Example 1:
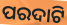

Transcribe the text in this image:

ପରଦାଟି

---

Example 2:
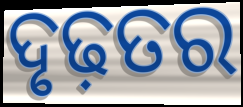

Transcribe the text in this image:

ଦୃଢ଼ତର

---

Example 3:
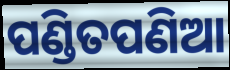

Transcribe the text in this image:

ପଣ୍ଡିତପଣିଆ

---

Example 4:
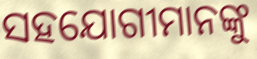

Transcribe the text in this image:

ସହଯୋଗୀମାନଙ୍କୁ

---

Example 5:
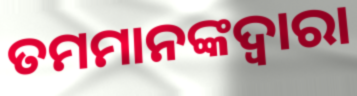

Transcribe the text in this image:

ତମମାନଙ୍କଦ୍ଵାରା